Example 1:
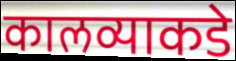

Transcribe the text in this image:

कालव्याकडे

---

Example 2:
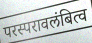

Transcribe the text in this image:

परस्परावलंबित्व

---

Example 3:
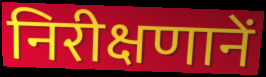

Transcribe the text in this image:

निरीक्षणानें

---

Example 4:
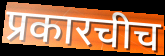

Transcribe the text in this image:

प्रकारचीच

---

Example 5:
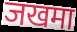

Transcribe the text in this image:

जखमा